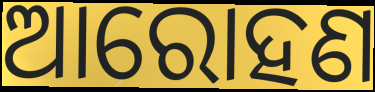
ଆରୋହଣ